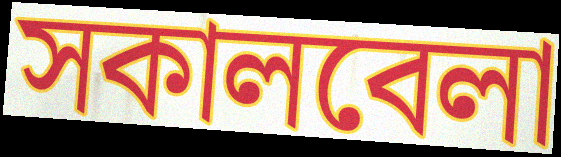
সকালবেলা